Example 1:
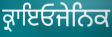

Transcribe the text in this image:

ਕ੍ਰਾਇਓਜੇਨਿਕ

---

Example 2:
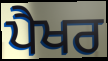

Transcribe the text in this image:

ਪੈਖਰ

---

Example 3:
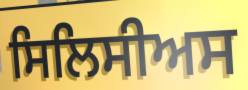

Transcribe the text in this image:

ਸਿਲਿਸੀਅਸ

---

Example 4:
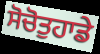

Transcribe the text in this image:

ਸੋਚੋਤੁਹਾਡੇ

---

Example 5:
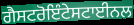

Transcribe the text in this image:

ਗੈਸਟਰੋਇੰਟੇਸਟਾਈਨਲ